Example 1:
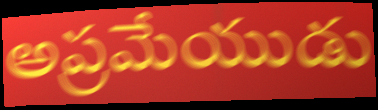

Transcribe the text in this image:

అప్రమేయుడు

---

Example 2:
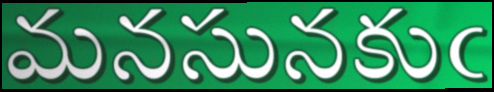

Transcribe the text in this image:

మనసునకుఁ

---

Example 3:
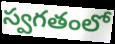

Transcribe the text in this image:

స్వగతంలో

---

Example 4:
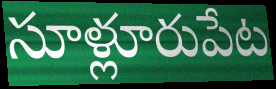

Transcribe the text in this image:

సూళ్లూరుపేట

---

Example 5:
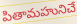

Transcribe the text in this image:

పితామహునిచే